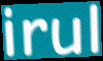
irul